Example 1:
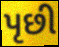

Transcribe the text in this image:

પૃછી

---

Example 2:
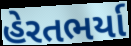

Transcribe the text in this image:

હેરતભર્યા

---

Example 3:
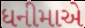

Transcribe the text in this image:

ધનીમાએ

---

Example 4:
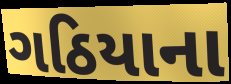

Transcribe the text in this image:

ગઠિયાના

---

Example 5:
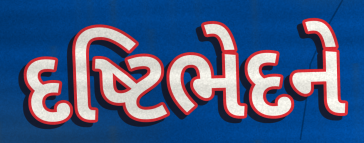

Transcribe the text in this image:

દષ્ટિભેદને